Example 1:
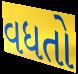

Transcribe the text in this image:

વધતો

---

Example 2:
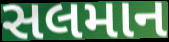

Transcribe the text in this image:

સલમાન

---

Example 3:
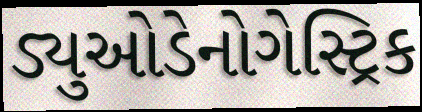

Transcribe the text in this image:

ડ્યુઓડેનોગેસ્ટ્રિક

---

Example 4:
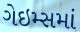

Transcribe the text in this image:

ગેઇમ્સમાં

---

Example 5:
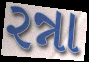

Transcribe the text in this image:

રન્ના